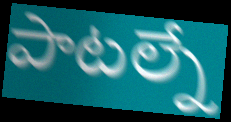
పాటల్నే